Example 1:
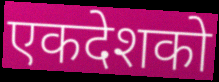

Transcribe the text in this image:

एकदेशको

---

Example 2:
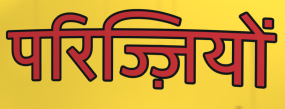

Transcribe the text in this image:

परिज्ज़ियों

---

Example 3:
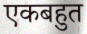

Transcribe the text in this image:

एकबहुत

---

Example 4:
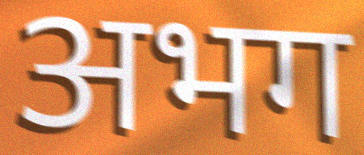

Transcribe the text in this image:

अभग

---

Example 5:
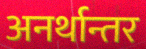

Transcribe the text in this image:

अनर्थान्तर